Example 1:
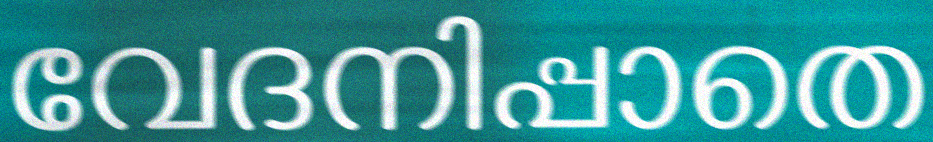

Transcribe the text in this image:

വേദനിപ്പാതെ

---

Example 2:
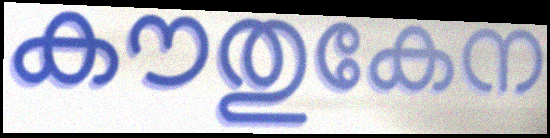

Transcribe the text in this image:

കൗതുകേന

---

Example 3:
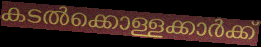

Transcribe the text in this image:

കടൽക്കൊള്ളക്കാർക്ക്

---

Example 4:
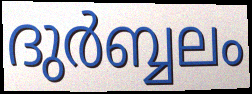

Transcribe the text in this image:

ദുർബ്ബലം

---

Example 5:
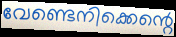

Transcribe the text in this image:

വേണ്ടെനിക്കെന്റെ